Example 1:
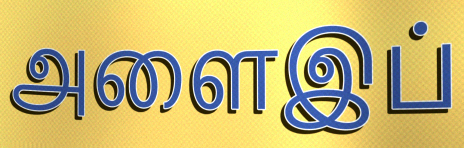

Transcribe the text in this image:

அளைஇப்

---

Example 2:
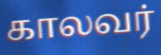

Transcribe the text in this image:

காலவர்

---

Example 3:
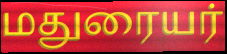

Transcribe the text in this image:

மதுரையர்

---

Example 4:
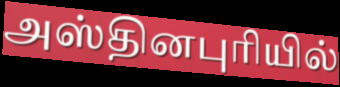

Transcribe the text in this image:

அஸ்தினபுரியில்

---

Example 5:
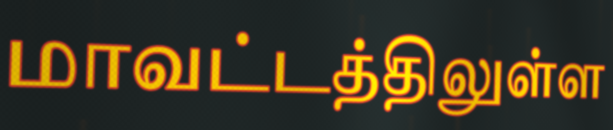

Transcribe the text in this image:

மாவட்டத்திலுள்ள